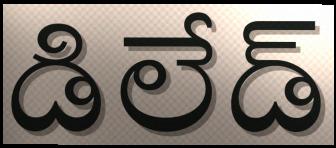
డిలేడ్